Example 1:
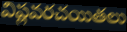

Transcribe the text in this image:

విప్లవరచయితలు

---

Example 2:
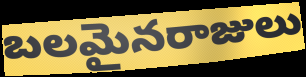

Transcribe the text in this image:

బలమైనరాజులు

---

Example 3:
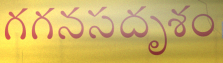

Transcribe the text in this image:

గగనసదృశం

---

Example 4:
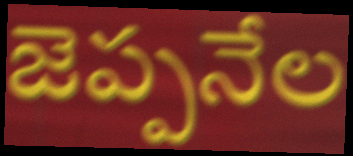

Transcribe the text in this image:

జెప్పనేల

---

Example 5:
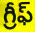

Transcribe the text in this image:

గ్రీఫ్